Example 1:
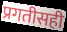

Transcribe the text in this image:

प्रगतीसही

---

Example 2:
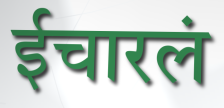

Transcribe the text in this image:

ईचारलं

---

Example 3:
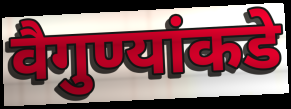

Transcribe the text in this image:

वैगुण्यांकडे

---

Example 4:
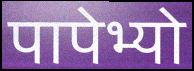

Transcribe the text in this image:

पापेभ्यो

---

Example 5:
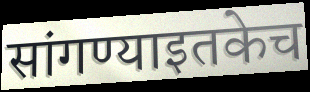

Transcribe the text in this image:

सांगण्याइतकेच